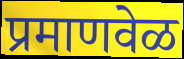
प्रमाणवेळ